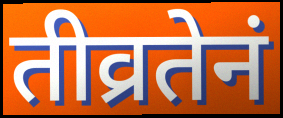
तीव्रतेनं